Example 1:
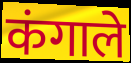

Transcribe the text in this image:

कंगाले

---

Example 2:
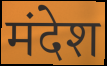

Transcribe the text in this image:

मंदेश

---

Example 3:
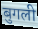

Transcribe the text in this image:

बुगली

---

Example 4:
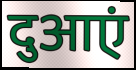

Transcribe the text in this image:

दुआएं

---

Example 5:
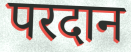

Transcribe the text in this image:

परदान